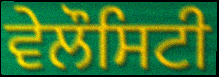
ਵੇਲੌਸਿਟੀ